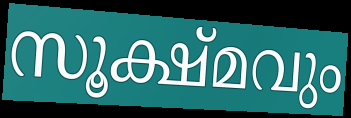
സൂക്ഷ്മവും